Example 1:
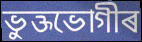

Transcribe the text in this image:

ভুক্তভোগীৰ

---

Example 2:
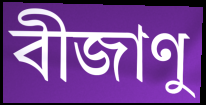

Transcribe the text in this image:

বীজাণু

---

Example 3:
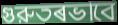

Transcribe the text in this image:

গুৰুতৰভাবে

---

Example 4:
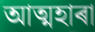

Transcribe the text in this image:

আত্মহাৰা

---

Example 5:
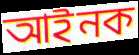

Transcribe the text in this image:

আইনক